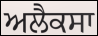
ਅਲੈਕਸਾ